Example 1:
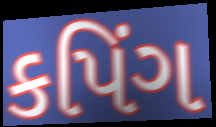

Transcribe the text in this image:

કપિંગ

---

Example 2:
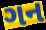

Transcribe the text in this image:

ગન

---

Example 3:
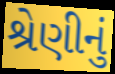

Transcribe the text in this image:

શ્રેણીનું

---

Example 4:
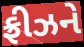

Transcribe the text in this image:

ફ્રીઝને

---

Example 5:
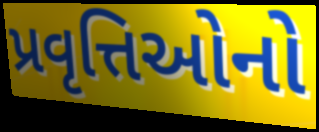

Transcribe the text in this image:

પ્રવૃત્તિઓનો